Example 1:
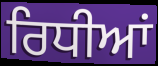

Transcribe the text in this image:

ਰਿਧੀਆਂ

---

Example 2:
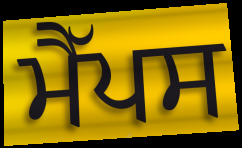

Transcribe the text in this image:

ਮੈੱਪਸ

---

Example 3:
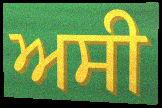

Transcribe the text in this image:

ਅਸੀ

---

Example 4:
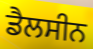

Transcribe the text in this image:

ਡੈਲਸੀਨ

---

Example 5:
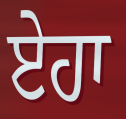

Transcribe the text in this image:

ਏਹਾ